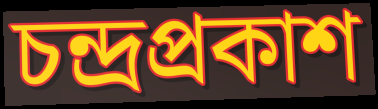
চন্দ্রপ্রকাশ